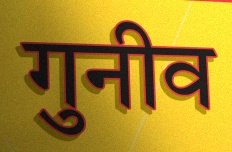
गुनीव